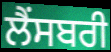
ਲੈਂਸਬਰੀ